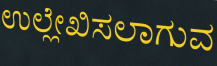
ಉಲ್ಲೇಖಿಸಲಾಗುವ